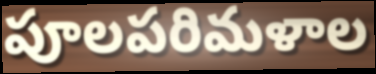
పూలపరిమళాల